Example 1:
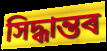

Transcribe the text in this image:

সিদ্ধান্তৰ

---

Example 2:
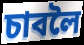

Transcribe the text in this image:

চাবলৈ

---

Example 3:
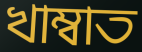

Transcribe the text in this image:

খাম্বাত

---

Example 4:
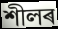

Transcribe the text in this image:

শীলৰ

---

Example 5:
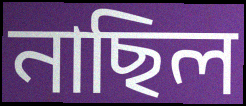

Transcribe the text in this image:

নাছিল